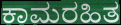
ಕಾಮರಹಿತ